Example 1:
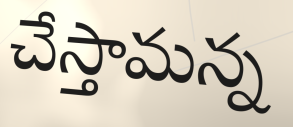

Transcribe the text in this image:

చేస్తామన్న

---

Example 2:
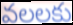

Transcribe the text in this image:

వలలకు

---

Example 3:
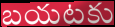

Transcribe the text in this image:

బయటకు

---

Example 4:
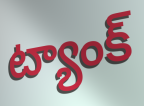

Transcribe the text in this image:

ట్యాంక్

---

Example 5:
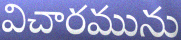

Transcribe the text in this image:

విచారమును